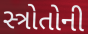
સ્ત્રોતોની